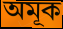
অমূক